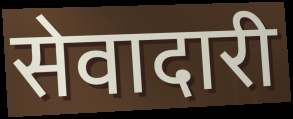
सेवादारी